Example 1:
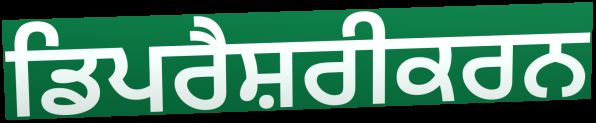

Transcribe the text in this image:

ਡਿਪਰੈਸ਼ਰੀਕਰਨ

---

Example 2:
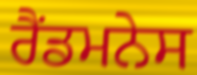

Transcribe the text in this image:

ਰੈਂਡਮਨੇਸ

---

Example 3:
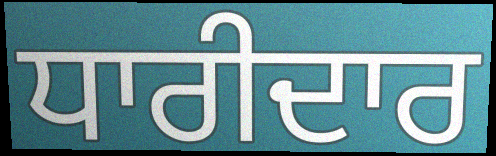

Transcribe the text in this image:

ਧਾਰੀਦਾਰ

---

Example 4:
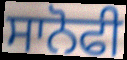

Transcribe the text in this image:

ਸਾਨੋਫੀ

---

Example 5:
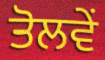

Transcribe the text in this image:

ਤੋਲਵੇਂ